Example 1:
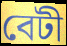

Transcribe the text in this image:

বেটী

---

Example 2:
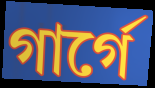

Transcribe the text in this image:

গাৰ্গে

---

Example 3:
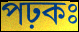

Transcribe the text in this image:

পঢ়কঃ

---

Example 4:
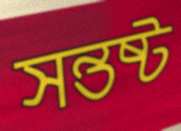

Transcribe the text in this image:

সন্তষ্ট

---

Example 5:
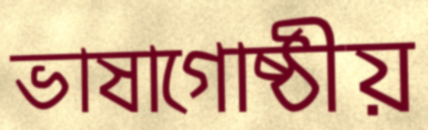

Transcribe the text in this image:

ভাষাগোষ্ঠীয়